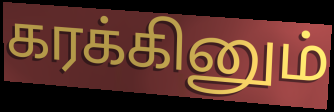
கரக்கினும்